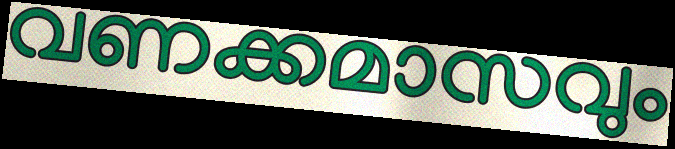
വണക്കമാസവും